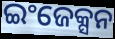
ଇଂଜେକ୍ସନ